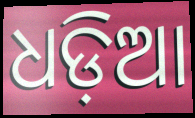
ଧଡ଼ିଆ